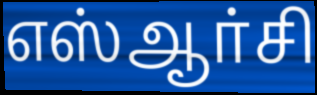
எஸ்ஆர்சி